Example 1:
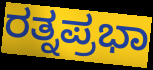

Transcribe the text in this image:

ರತ್ನಪ್ರಭಾ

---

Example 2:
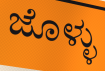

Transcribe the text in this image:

ಜೊಳ್ಳು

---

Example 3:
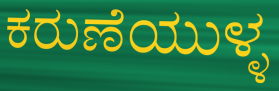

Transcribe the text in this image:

ಕರುಣೆಯುಳ್ಳ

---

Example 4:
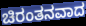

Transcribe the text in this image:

ಚಿರಂತನವಾದ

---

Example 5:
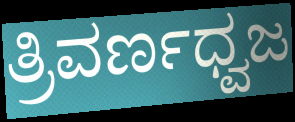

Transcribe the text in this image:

ತ್ರಿವರ್ಣಧ್ವಜ